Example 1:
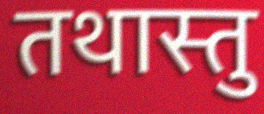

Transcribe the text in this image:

तथास्तु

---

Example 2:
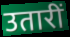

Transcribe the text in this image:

उतारीं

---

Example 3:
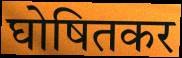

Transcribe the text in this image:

घोषितकर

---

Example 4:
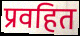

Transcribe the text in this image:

प्रवहित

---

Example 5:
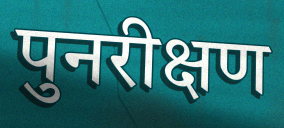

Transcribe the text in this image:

पुनरीक्षण